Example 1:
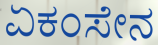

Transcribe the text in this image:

ಏಕಂಸೇನ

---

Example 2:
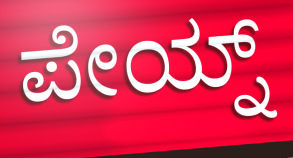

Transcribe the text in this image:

ಪೇಯ್ನ್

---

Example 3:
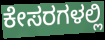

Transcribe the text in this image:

ಕೇಸರಗಳಲ್ಲಿ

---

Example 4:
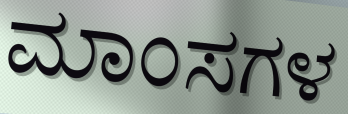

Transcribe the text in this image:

ಮಾಂಸಗಳ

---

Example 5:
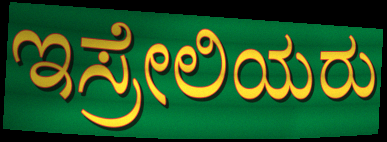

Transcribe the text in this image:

ಇಸ್ರೇಲಿಯರು